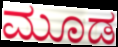
ಮೂಡ